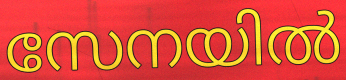
സേനയിൽ